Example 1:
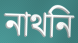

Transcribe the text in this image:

নাথনি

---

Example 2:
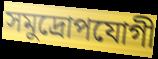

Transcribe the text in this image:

সমুদ্রোপযোগী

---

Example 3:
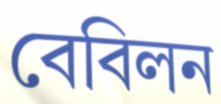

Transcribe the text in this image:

বেবিলন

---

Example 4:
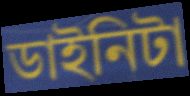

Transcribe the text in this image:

ডাইনিটা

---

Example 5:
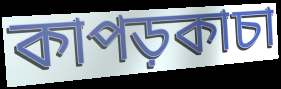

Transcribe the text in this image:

কাপড়কাচা